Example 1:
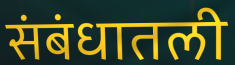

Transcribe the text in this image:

संबंधातली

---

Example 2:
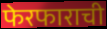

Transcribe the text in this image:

फेरफाराची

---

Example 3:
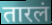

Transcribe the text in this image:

तारलं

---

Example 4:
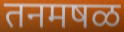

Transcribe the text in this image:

तनमषळ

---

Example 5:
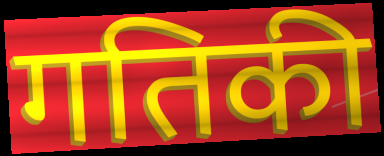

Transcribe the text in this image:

गतिकी